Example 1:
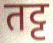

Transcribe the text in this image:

तट्ट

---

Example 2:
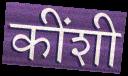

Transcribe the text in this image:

कींशी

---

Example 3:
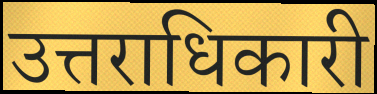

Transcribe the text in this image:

उत्तराधिकारी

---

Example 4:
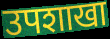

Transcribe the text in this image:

उपशाखा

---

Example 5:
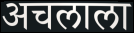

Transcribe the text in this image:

अचलाला